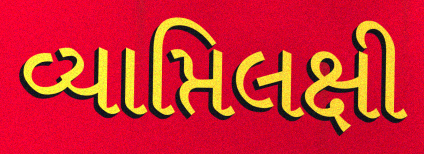
વ્યાપ્તિલક્ષી